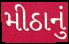
મીઠાનું